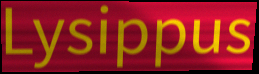
Lysippus